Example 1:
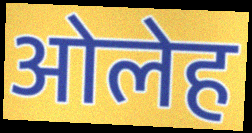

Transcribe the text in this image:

ओलेह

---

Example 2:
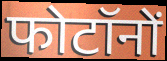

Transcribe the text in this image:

फोटॉनों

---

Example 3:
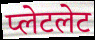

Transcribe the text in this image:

प्लेटलेट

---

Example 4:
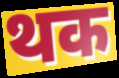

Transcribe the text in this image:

थक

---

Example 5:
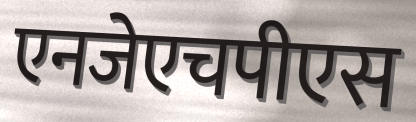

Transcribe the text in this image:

एनजेएचपीएस